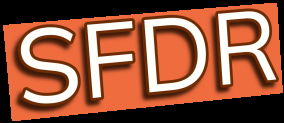
SFDR